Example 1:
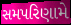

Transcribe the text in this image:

સમપરિણામે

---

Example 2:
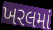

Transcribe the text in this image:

ખરલમાં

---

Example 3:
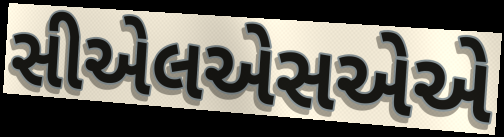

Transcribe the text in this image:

સીએલએસએએ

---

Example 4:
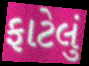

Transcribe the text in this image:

ફાટેલું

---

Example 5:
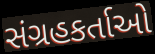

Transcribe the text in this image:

સંગ્રહકર્તાઓ